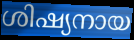
ശിഷ്യനായ